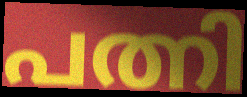
പത്നി